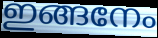
ഇങ്ങനേം